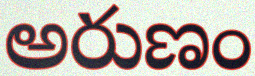
అరుణం